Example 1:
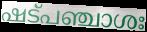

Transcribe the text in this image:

ഷട്പഞ്ചാശഃ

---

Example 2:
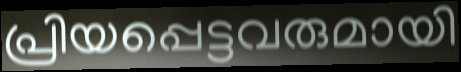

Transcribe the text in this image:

പ്രിയപ്പെട്ടവരുമായി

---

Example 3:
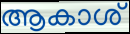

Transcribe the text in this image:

ആകാശ്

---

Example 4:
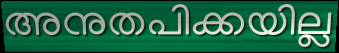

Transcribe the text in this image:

അനുതപിക്കയില്ല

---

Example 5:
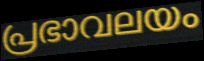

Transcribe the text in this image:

പ്രഭാവലയം